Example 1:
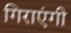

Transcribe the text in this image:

गिराएंगी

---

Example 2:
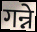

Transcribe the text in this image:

गन्ने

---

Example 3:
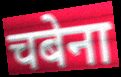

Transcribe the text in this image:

चबेना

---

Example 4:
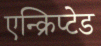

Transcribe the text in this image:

एन्क्रिप्टेड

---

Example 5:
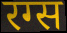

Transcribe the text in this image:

रग्स